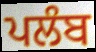
ਪਲੰਬ